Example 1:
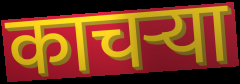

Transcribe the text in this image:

काचऱ्या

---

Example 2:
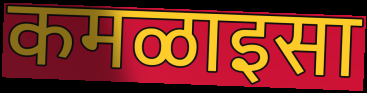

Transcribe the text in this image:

कमळाइसा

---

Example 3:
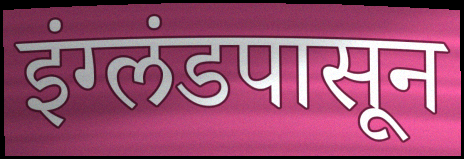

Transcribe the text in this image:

इंग्लंडपासून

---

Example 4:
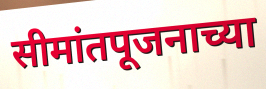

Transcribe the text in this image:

सीमांतपूजनाच्या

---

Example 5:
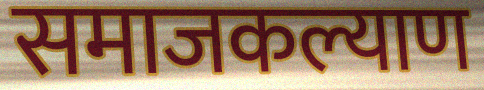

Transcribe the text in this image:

समाजकल्याण